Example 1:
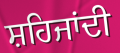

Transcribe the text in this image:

ਸ਼ਹਿਜਾਂਦੀ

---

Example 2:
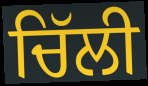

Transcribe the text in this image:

ਚਿੱਲੀ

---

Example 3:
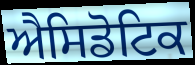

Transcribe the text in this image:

ਐਸਿਡੋਟਿਕ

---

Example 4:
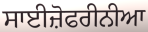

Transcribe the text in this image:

ਸਾਈਜ਼ੋਫਰੀਨੀਆ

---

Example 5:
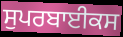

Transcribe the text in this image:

ਸੁਪਰਬਾਈਕਸ